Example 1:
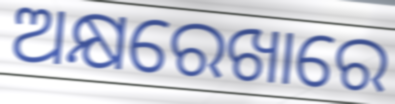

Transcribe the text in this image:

ଅକ୍ଷରେଖାରେ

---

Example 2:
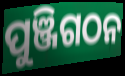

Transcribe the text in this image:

ପୁଞ୍ଜିଗଠନ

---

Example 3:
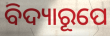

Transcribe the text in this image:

ବିଦ୍ୟାରୂପେ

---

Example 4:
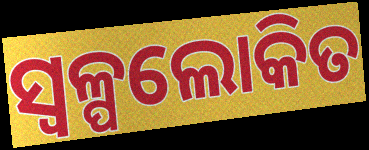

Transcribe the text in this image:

ସ୍ୱଳ୍ପଲୋକିତ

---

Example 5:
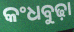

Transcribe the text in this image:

କଂଧବୁଢ଼ା